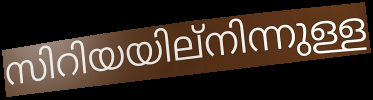
സിറിയയില്നിന്നുള്ള